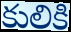
కులికి